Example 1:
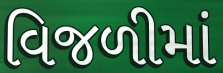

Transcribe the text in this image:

વિજળીમાં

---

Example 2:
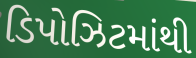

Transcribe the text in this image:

ડિપોઝિટમાંથી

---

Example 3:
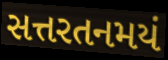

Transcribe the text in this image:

સત્તરતનમયં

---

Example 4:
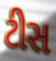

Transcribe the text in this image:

ટીસ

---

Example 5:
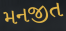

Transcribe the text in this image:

મનજીત